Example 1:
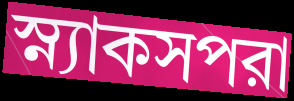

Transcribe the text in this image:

স্ন্যাকসপরা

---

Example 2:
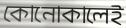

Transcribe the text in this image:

কোনোকালেই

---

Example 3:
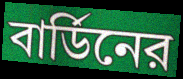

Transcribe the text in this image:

বার্ডিনের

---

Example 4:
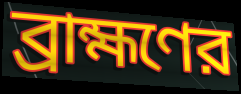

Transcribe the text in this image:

ব্রাহ্মণের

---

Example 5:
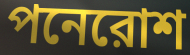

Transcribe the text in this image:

পনেরোশ